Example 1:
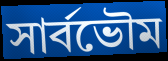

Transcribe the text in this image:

সাৰ্বভৌম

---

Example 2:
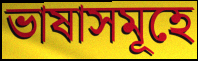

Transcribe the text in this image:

ভাষাসমূহে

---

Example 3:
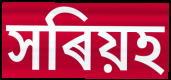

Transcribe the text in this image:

সৰিয়হ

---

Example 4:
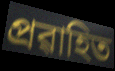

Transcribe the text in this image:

প্ৰৱাহিত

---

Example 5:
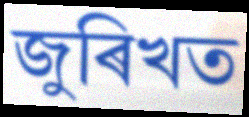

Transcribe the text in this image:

জুৰিখত